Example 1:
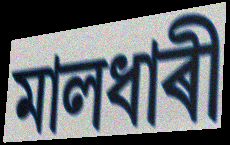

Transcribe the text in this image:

মালধাৰী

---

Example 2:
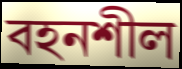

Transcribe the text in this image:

বহনশীল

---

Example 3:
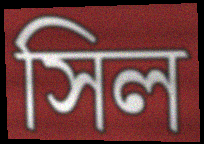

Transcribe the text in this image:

সিল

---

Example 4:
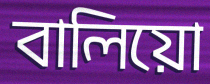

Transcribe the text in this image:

বালিয়ো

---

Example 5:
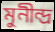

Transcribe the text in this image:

মুনীন্দ্ৰ